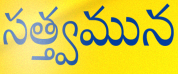
సత్త్వమున